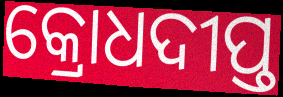
କ୍ରୋଧଦୀପ୍ତ